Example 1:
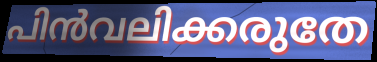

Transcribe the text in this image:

പിൻവലിക്കരുതേ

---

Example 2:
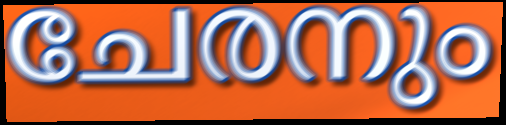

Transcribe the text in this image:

ചേരനും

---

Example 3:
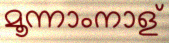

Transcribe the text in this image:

മൂന്നാംനാള്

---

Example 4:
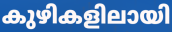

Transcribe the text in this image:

കുഴികളിലായി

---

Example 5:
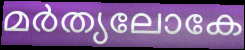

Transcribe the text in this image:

മർത്യലോകേ